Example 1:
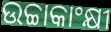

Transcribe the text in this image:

ଉଚ୍ଚାକାଂକ୍ଷୀ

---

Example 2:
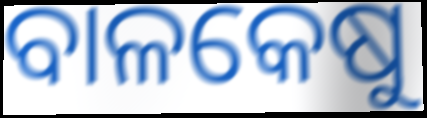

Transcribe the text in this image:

ବାଳକେଷୁ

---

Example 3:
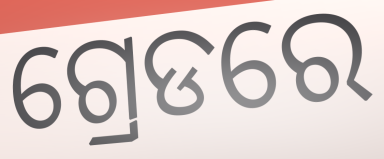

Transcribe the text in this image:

ଗ୍ରେଡରେ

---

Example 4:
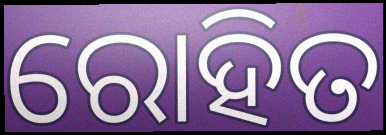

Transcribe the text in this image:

ରୋହିତ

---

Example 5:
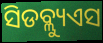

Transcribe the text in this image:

ସିଡବ୍ଲ୍ୟୁଏସ